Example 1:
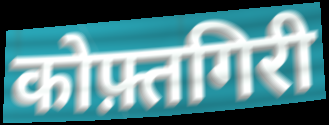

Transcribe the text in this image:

कोफ़्तगिरी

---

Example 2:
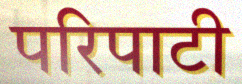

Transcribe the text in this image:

परिपाटी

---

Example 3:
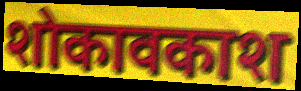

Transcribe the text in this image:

शोकावकाश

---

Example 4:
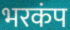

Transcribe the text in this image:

भरकंप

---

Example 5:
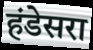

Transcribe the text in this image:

हंडेसरा